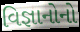
વિજ્ઞાનોનો